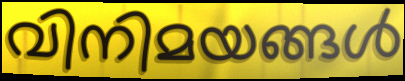
വിനിമയങ്ങൾ